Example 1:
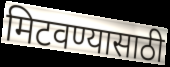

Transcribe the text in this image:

मिटवण्यासाठी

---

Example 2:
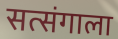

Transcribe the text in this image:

सत्संगाला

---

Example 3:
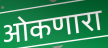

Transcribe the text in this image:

ओकणारा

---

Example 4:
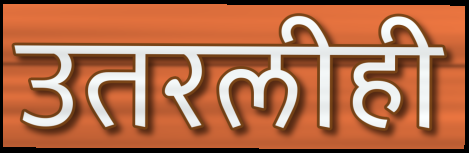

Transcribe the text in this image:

उतरलीही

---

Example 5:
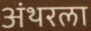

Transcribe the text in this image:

अंथरला